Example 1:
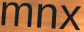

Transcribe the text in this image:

mnx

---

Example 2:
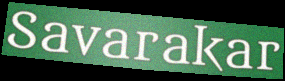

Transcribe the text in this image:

Savarakar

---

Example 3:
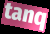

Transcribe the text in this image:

tanq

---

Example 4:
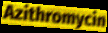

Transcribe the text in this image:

Azithromycin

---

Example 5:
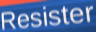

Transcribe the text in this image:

Resister